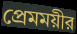
প্রেমময়ীর